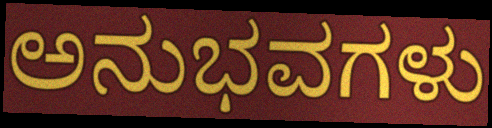
ಅನುಭವಗಳು